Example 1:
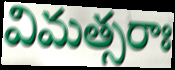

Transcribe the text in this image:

విమత్సరాః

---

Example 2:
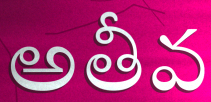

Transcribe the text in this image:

అతీవ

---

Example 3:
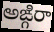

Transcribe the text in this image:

అఙ్గిరా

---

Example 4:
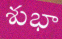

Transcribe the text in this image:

శుభా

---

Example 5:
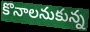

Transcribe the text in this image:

కొనాలనుకున్న